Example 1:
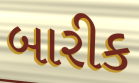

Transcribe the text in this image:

બારીક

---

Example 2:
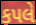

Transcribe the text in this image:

કપલે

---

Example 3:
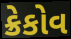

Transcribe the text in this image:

ક્રેકોવ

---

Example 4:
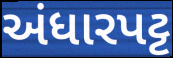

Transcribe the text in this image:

અંધારપટ્ટ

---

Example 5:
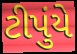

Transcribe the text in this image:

ટીપુંયે